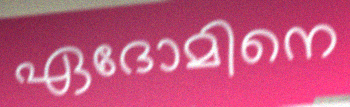
ഏദോമിനെ